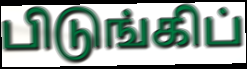
பிடுங்கிப்